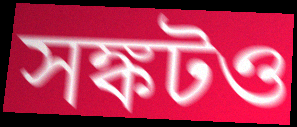
সঙ্কটও